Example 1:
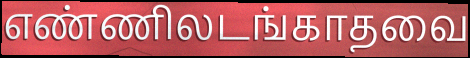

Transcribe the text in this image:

எண்ணிலடங்காதவை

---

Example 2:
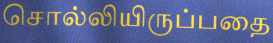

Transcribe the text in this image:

சொல்லியிருப்பதை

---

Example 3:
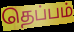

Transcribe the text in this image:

தெப்பம்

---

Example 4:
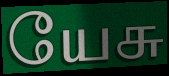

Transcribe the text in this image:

யேசு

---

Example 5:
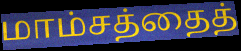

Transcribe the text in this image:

மாம்சத்தைத்